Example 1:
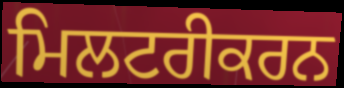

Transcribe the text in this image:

ਮਿਲਟਰੀਕਰਨ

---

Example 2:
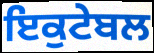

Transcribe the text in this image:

ਇਕੁਟੇਬਲ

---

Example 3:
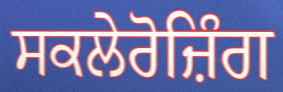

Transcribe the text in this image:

ਸਕਲੇਰੋਜ਼ਿੰਗ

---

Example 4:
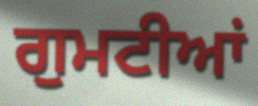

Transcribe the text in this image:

ਗੁਮਟੀਆਂ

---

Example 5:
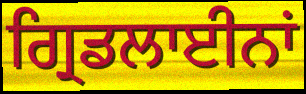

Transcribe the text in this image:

ਗ੍ਰਿਡਲਾਈਨਾਂ